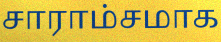
சாராம்சமாக